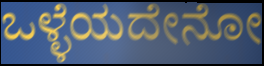
ಒಳ್ಳೆಯದೇನೋ